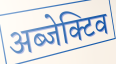
अब्जेक्टिव